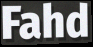
Fahd